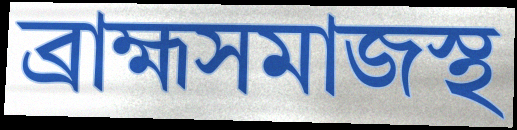
ব্রাহ্মসমাজস্থ